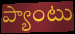
ప్యాంటు